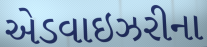
એડવાઇઝરીના